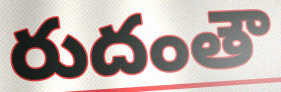
రుదంతౌ